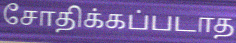
சோதிக்கப்படாத